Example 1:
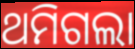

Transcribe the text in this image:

ଥମିଗଲା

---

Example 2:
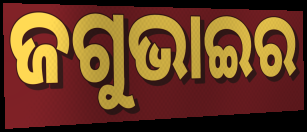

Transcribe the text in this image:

ଜଗୁଭାଇର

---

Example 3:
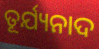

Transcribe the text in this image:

ତୂର୍ଯ୍ୟନାଦ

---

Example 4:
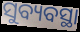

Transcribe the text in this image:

ସୁବ୍ୟବସ୍ଥା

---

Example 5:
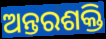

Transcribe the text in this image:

ଅନ୍ତରଶକ୍ତି